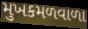
મુખકમળવાળા